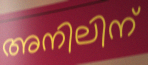
അനിലിന്